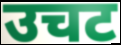
उचट